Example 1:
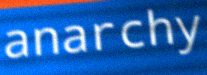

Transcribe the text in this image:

anarchy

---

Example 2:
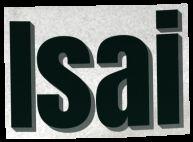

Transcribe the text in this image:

Isai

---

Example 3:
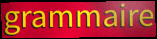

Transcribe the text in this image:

grammaire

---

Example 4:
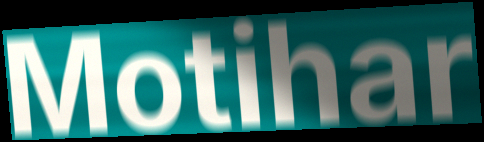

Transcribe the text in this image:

Motihar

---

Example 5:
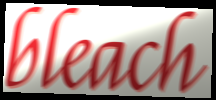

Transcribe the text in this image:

bleach